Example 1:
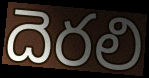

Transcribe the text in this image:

దెరలి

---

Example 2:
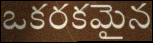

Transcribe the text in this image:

ఒకరకమైన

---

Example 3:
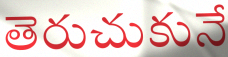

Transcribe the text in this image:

తెరుచుకునే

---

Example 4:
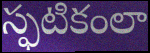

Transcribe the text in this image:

స్ఫటికంలా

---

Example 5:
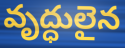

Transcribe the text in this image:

వృద్ధులైన